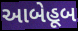
આબેહૂબ